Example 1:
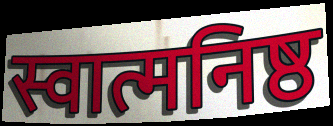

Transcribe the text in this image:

स्वात्मनिष्ठ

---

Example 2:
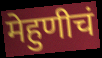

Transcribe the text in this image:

मेहुणीचं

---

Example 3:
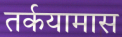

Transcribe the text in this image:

तर्कयामास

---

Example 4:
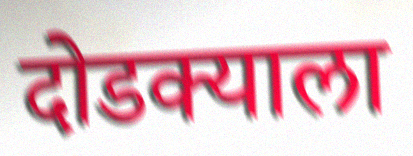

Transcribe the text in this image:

दोडक्याला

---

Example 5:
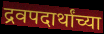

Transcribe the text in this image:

द्रवपदार्थांच्या